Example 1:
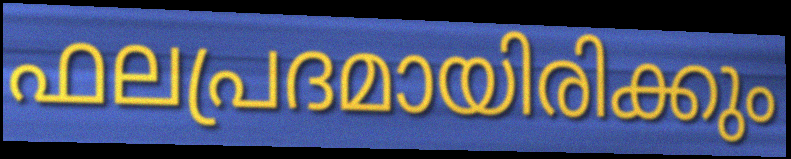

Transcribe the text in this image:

ഫലപ്രദമായിരിക്കും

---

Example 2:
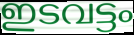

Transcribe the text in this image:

ഇടവട്ടം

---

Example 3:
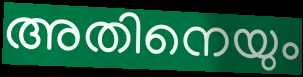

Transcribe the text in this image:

അതിനെയും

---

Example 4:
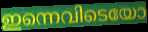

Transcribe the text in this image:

ഇന്നെവിടെയോ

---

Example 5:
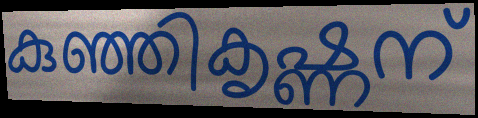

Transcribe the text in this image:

കുഞ്ഞികൃഷ്ണന്